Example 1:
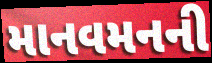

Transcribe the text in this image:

માનવમનની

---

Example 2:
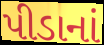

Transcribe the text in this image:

પીડાનાં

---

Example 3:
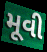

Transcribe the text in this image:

મૂવી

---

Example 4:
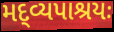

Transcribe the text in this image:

મદ્વ્યપાશ્રયઃ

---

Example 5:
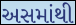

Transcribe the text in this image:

અસમાંથી